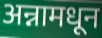
अन्नामधून